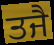
ਤਜੈ